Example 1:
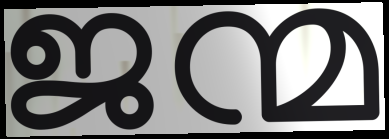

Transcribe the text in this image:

ജന്മ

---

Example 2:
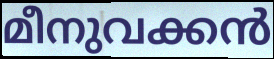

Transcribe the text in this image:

മീനുവക്കൻ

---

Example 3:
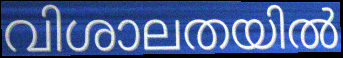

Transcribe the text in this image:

വിശാലതയിൽ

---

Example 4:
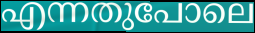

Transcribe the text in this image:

എന്നതുപോലെ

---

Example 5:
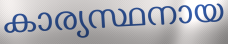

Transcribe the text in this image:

കാര്യസ്ഥനായ